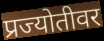
प्रज्योतीवर